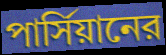
পার্সিয়ানের